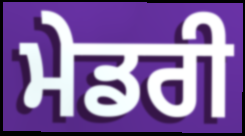
ਮੇਡਰੀ